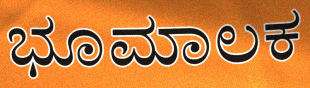
ಭೂಮಾಲಕ